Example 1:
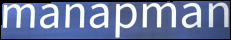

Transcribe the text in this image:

manapman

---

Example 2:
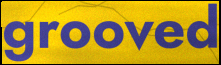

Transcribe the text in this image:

grooved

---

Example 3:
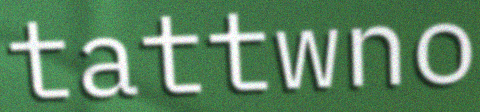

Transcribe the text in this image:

tattwno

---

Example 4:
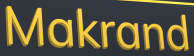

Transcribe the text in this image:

Makrand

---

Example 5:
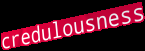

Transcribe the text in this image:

credulousness